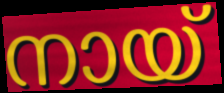
നായ്